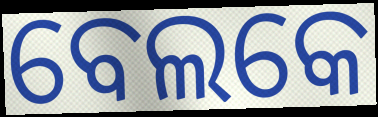
ବେଲକେ